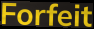
Forfeit